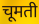
चूमती